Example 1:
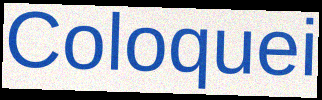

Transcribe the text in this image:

Coloquei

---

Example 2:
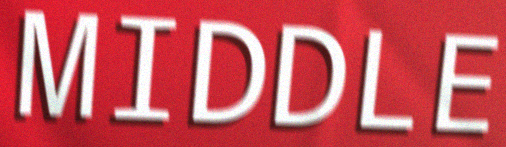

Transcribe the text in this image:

MIDDLE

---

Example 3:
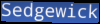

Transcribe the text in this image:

Sedgewick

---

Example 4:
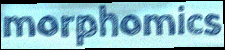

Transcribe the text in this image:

morphomics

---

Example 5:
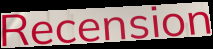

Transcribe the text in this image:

Recension